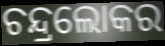
ଚନ୍ଦ୍ରଲୋକର